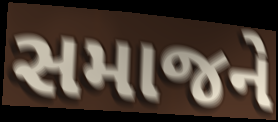
સમાજને